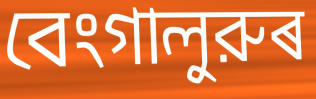
বেংগালুৰুৰ